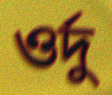
ওর্দু